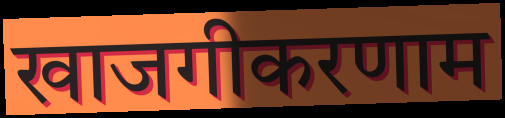
खाजगीकरणाम